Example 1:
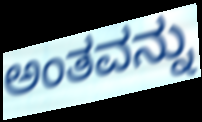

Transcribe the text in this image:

ಅಂತವನ್ನು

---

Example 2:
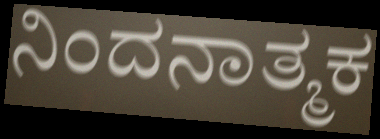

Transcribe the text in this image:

ನಿಂದನಾತ್ಮಕ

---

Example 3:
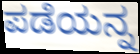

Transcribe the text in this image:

ಪಡೆಯನ್ನ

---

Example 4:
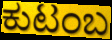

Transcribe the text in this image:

ಕುಟಂಬ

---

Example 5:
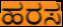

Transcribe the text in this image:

ಹರಸ